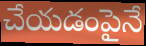
చేయడంపైనే